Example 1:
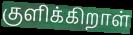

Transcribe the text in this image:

குளிக்கிறாள்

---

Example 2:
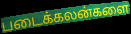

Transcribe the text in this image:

படைக்கலன்களை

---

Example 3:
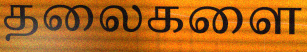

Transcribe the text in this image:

தலைகளை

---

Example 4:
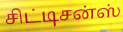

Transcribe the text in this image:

சிட்டிசன்ஸ்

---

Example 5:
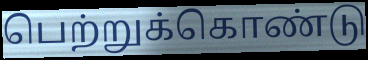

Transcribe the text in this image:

பெற்றுக்கொண்டு